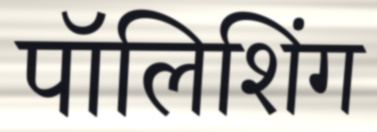
पॉलिशिंग